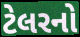
ટેલરનો